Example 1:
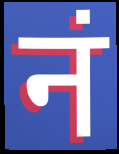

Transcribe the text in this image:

नं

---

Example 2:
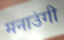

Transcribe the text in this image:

मनाउंगी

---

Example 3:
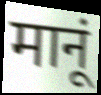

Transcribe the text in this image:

मानूं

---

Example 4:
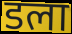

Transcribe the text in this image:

डला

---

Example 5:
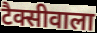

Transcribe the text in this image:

टैक्सीवाला